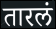
तारलं